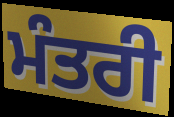
ਮੰਤਰੀ